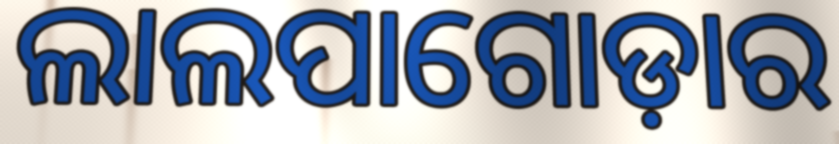
ଲାଲପାଗୋଡ଼ାର